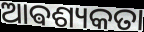
ଆଵଶ୍ୟକତା